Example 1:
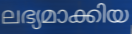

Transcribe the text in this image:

ലഭ്യമാക്കിയ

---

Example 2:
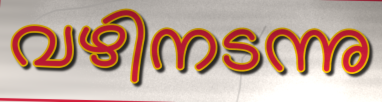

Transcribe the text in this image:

വഴിനടന്നു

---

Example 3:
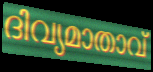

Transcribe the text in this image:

ദിവ്യമാതാവ്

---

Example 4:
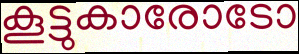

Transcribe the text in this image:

കൂട്ടുകാരോടോ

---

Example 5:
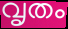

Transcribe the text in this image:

വൃതം